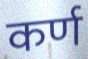
कर्ण